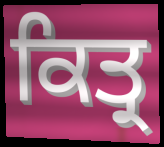
ਕਿਤ੍ਰ